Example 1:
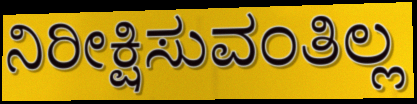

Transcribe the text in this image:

ನಿರೀಕ್ಷಿಸುವಂತಿಲ್ಲ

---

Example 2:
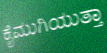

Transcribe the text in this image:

ಕೈಮುಗಿಯುತ್ತಾ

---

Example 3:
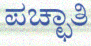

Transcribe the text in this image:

ಪಚ್ಛಾತಿ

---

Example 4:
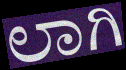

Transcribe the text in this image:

ಲಾಗಿ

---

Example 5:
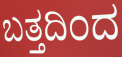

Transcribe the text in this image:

ಬತ್ತದಿಂದ